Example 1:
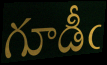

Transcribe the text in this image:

గూడీఁ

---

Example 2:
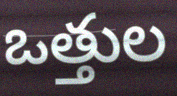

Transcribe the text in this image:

ఒత్తుల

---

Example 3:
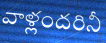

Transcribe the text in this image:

వాళ్లందరినీ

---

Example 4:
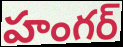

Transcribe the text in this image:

హంగర్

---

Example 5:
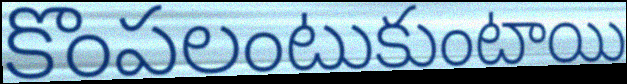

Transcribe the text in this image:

కొంపలంటుకుంటాయి